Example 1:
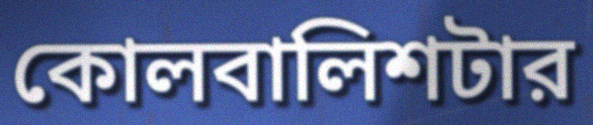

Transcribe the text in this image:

কোলবালিশটার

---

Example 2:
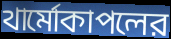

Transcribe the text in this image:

থার্মোকাপলের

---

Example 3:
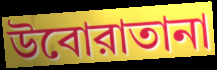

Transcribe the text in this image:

উবোরাতানা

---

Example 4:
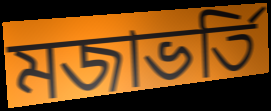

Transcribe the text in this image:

মজাভর্তি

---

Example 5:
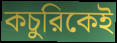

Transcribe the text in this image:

কচুরিকেই